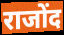
राजोंद